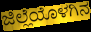
ಜಿಲ್ಲೆಯೊಳಗಿನ